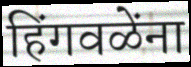
हिंगवळेंना